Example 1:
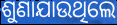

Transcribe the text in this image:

ଶୁଣାଯାଉଥିଲେ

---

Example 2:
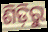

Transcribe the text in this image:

ଶିଡ଼ିରୁ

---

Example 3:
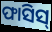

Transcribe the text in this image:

ଫାସିସ୍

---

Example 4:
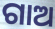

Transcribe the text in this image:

ଗାଅ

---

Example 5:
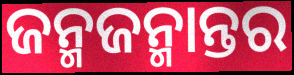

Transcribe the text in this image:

ଜନ୍ମଜନ୍ମାନ୍ତର